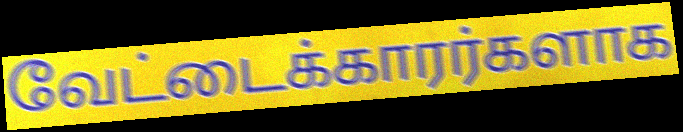
வேட்டைக்காரர்களாக